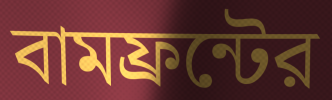
বামফ্রন্টের